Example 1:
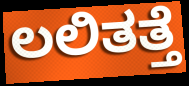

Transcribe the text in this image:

ಲಲಿತತ್ತೆ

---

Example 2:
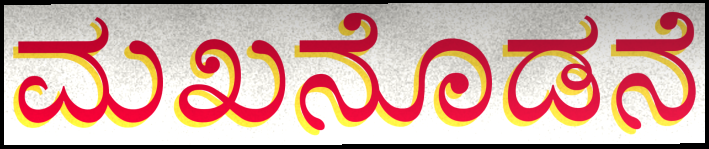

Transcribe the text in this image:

ಮಖನೊಡನೆ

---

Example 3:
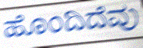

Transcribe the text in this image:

ಹೊಂದಿದೆವು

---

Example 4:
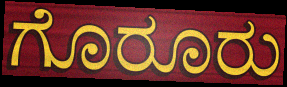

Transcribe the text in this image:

ಗೊರೂರು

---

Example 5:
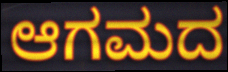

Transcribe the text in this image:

ಆಗಮದ